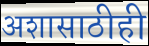
अशासाठीही